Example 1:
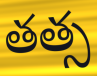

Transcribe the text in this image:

తత్స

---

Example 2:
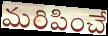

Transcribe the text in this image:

మరిపించే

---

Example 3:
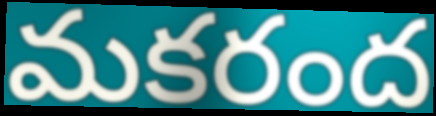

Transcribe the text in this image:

మకరంద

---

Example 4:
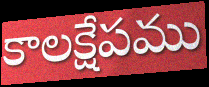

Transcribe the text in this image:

కాలక్షేపము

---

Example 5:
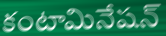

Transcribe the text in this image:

కంటామినేషన్